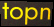
topn